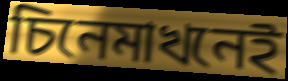
চিনেমাখনেই